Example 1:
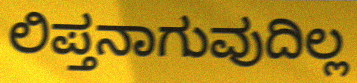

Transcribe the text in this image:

ಲಿಪ್ತನಾಗುವುದಿಲ್ಲ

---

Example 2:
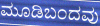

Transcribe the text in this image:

ಮೂಡಿಬಂದವು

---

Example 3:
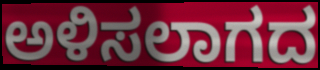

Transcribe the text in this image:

ಅಳಿಸಲಾಗದ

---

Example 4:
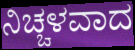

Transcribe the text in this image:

ನಿಚ್ಚಳವಾದ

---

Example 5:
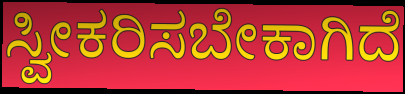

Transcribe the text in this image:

ಸ್ವೀಕರಿಸಬೇಕಾಗಿದೆ